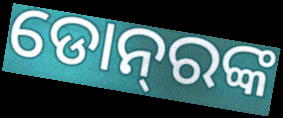
ଡୋନ୍‌ରଙ୍କ